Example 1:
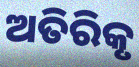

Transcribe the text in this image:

ଅତିରିକୃ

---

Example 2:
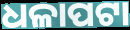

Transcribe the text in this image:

ଧଳାପଟା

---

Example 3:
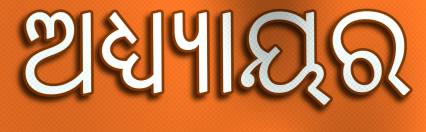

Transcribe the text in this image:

ଅଧ୍ୟ୍ୟାୟର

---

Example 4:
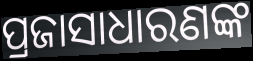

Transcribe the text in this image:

ପ୍ରଜାସାଧାରଣଙ୍କ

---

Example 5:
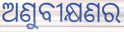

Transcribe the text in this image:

ଅଣୁବୀକ୍ଷଣର